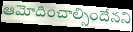
ఆమోదించాల్సిందేనని